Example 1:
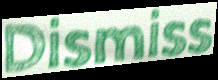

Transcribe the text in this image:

Dismiss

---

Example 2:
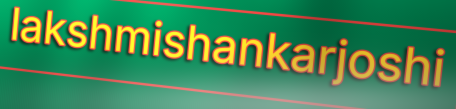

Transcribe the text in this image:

lakshmishankarjoshi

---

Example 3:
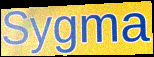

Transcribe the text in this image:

Sygma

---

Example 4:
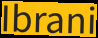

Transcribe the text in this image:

Ibrani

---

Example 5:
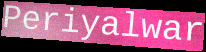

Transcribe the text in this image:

Periyalwar